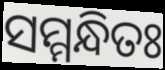
ସମ୍ମନ୍ଧିତଃ